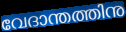
വേദാന്തത്തിനു